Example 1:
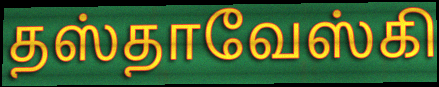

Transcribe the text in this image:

தஸ்தாவேஸ்கி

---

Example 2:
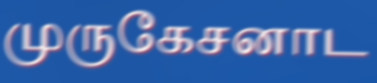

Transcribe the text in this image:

முருகேசனாட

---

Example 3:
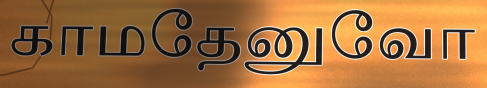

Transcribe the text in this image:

காமதேனுவோ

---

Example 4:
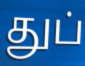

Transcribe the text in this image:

துப்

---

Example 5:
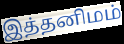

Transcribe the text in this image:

இத்தனிமம்